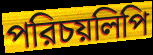
পরিচয়লিপি